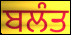
ਬਲੰਤ